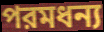
পরমধন্য